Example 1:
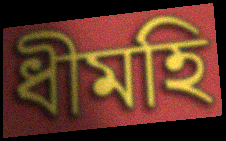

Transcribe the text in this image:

ধীমহি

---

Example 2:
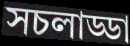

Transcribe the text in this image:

সচলাড্ডা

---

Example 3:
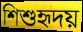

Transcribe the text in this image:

শিশুহৃদয়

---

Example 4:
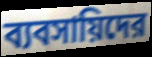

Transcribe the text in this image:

ব্যবসায়িদের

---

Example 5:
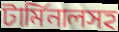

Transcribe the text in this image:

টার্মিনালসহ